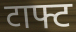
टाफ्ट